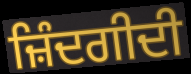
ਜ਼ਿੰਦਗੀਦੀ